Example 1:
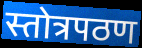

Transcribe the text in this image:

स्तोत्रपठण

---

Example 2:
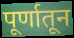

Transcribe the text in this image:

पूर्णातून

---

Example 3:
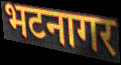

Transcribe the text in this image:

भटनागर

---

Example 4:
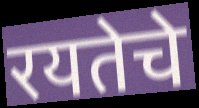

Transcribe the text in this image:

रयतेचे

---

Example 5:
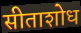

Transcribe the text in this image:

सीताशोध